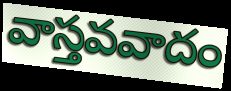
వాస్తవవాదం